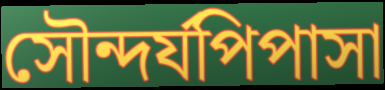
সৌন্দৰ্যপিপাসা